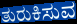
ತುರುಕಿಸುವ